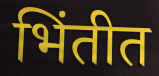
भिंतीत